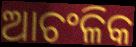
ଆଚଂଳିକ